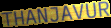
THANJAVUR